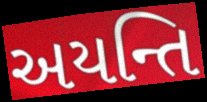
અયન્તિ